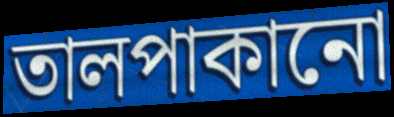
তালপাকানো